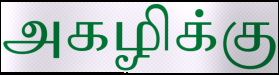
அகழிக்கு